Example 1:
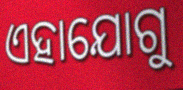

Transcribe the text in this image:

ଏହାଯୋଗୁ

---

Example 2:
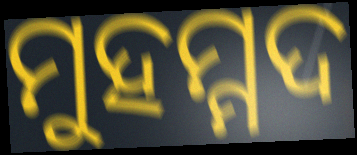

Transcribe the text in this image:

ମୁହମ୍ମଦ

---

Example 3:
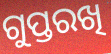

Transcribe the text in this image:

ଗୁପ୍ତରଖି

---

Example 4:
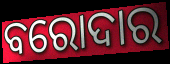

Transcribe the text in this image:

ବରୋଦାର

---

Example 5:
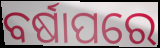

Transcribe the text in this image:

ବର୍ଷାପରେ